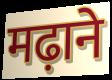
मढ़ाने